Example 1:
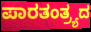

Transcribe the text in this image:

ಪಾರತಂತ್ರ್ಯದ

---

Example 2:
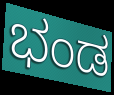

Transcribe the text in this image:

ಭಂಡ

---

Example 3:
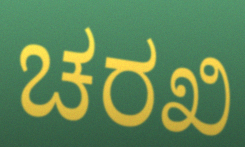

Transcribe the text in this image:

ಚರಖಿ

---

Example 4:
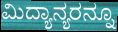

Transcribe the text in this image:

ಮಿದ್ಯಾನ್ಯರನ್ನೂ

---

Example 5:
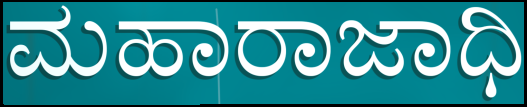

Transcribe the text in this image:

ಮಹಾರಾಜಾಧಿ